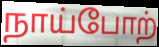
நாய்போற்